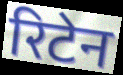
रिटेन